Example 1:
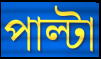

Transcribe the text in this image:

পাল্টা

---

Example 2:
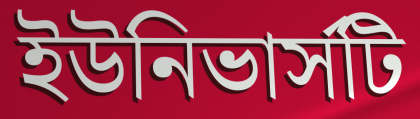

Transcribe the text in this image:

ইউনিভার্সটি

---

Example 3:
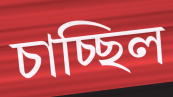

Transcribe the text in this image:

চাচ্ছিল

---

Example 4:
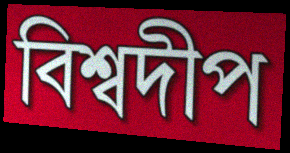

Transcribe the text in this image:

বিশ্বদীপ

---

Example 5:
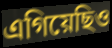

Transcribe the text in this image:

এগিয়েছিও